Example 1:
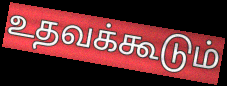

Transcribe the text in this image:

உதவக்கூடும்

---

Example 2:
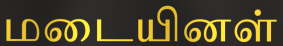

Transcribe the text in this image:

மடையினள்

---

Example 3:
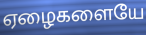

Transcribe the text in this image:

ஏழைகளையே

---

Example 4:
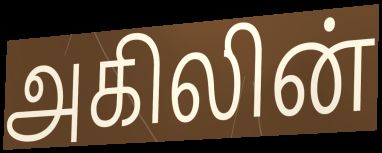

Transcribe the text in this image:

அகிலின்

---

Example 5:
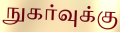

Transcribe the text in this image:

நுகர்வுக்கு